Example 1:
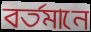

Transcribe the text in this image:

বৰ্তমানে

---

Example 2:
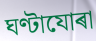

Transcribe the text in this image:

ঘণ্টাযোৰা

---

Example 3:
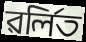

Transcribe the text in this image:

ৱৰ্লিত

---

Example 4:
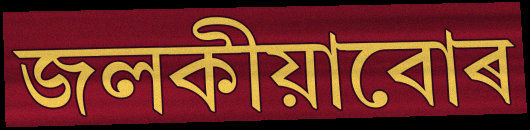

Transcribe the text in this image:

জলকীয়াবোৰ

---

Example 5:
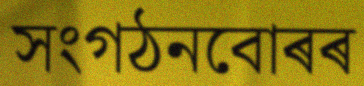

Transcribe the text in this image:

সংগঠনবোৰৰ